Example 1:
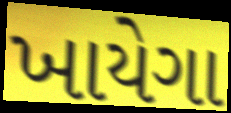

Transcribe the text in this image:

ખાયેગા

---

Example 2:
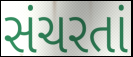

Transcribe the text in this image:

સંચરતાં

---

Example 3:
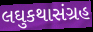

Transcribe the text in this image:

લઘુકથાસંગ્રહ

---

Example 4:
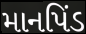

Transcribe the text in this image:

માનપિંડ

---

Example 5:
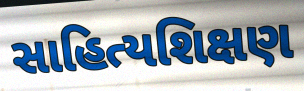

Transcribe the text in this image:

સાહિત્યશિક્ષણ